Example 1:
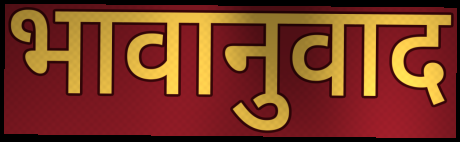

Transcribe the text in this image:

भावानुवाद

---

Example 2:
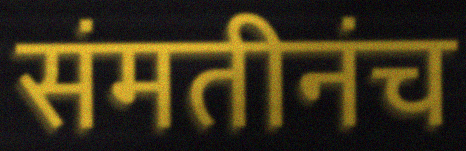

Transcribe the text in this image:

संमतीनंच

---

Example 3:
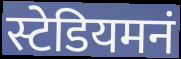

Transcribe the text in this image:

स्टेडियमनं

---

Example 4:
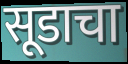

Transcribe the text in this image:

सूडाचा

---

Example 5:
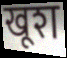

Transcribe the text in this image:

खूश